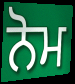
ਨੋਮ